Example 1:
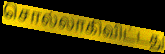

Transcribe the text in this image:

சொல்லாகிவிட்டது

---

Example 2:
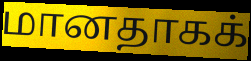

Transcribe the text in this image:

மானதாகக்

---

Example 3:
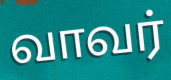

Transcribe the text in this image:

வாவர்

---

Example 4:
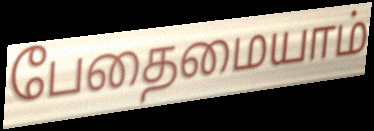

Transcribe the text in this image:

பேதைமையாம்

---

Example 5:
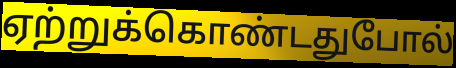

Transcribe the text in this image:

ஏற்றுக்கொண்டதுபோல்